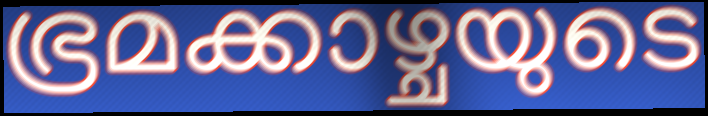
ഭ്രമക്കാഴ്ചയുടെ